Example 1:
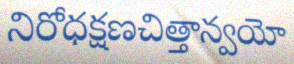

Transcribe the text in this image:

నిరోధక్షణచిత్తాన్వయో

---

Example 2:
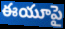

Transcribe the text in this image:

ఈయూపై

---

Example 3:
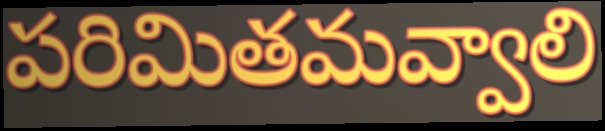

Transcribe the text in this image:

పరిమితమవ్వాలి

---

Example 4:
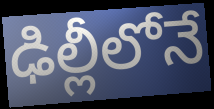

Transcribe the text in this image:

ఢిల్లీలోనే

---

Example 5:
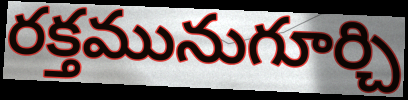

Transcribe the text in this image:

రక్తమునుగూర్చి